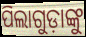
ପିଲାଗୁଡ଼ାଙ୍କୁ